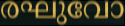
രഘുവോ